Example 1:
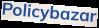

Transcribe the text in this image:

Policybazar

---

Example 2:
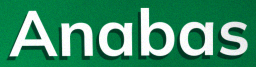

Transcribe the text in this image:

Anabas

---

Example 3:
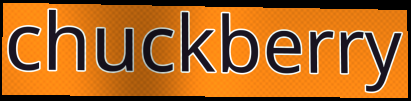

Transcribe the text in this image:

chuckberry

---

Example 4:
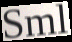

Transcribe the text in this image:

Sml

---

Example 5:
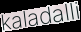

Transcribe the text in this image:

kaladalli